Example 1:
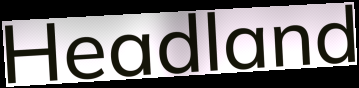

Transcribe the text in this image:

Headland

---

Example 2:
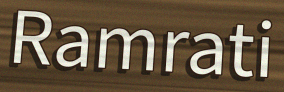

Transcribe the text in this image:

Ramrati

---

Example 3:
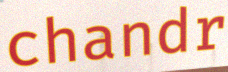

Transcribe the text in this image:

chandr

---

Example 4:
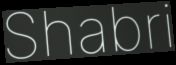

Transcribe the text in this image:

Shabri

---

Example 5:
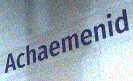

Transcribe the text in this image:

Achaemenid